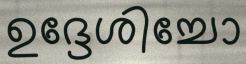
ഉദ്ദേശിച്ചോ